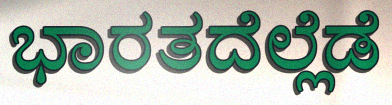
ಭಾರತದೆಲ್ಲೆಡೆ